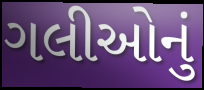
ગલીઓનું